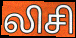
லிசி